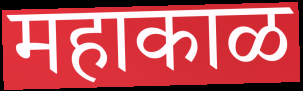
महाकाळ